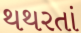
થથરતાં